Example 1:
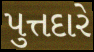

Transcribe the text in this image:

પુત્તદારે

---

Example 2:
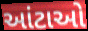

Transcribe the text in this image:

આંટાઓ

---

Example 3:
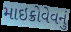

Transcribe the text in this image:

માઇક્રોવેવનું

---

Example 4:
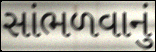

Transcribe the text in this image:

સાંભળવાનું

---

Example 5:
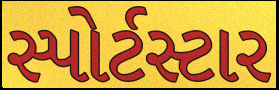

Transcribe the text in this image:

સ્પોર્ટસ્ટાર